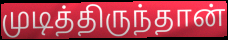
முடித்திருந்தான்